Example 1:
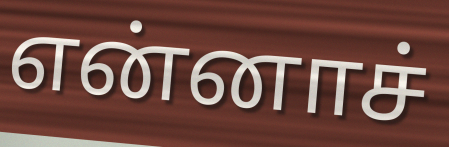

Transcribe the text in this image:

என்னாச்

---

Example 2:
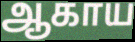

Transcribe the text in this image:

ஆகாய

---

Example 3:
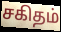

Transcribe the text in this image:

சகிதம்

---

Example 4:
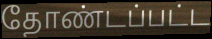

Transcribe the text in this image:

தோண்டப்பட்ட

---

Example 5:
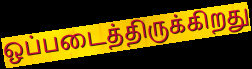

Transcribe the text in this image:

ஒப்படைத்திருக்கிறது